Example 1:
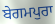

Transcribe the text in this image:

ਬੇਗਮਪੁਰਾ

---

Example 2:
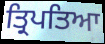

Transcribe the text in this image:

ਤ੍ਰਿਪਤਿਆ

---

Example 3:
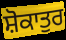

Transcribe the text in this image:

ਸ਼ੋਕਾਤੁਰ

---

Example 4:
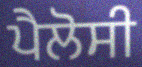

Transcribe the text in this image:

ਪੈਲੋਸੀ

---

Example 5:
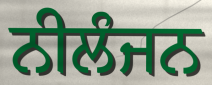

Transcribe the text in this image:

ਨੀਲੰਜਨ